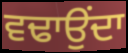
ਵਢਾਉਂਦਾ